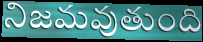
నిజమవుతుంది